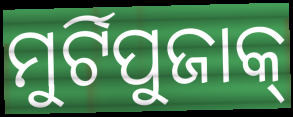
ମୁର୍ଟିପୁଜାକ୍